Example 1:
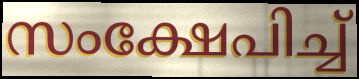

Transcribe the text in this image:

സംക്ഷേപിച്ച്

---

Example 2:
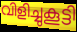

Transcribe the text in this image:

വിളിച്ചുകൂട്ടി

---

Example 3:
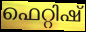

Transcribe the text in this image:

ഫെറ്റിഷ്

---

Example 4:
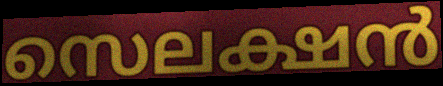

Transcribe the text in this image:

സെലക്ഷൻ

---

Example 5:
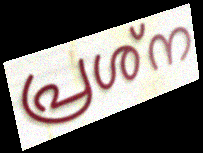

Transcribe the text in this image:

പ്രശ്‌ന